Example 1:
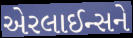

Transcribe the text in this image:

એરલાઈન્સને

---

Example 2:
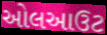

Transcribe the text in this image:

ઓલઆઉટ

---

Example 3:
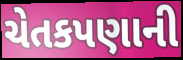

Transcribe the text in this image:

ચેતકપણાની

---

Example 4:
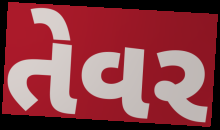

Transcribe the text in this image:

તેવર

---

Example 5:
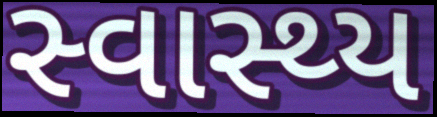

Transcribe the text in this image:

સ્વાસ્થ્ય